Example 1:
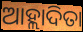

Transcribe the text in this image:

ଆହ୍ଲାଦିତା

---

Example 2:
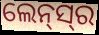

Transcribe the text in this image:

ଲେନ୍‌ସ୍‍ର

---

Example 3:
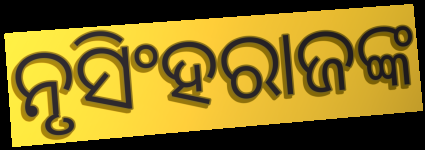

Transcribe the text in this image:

ନୃସିଂହରାଜଙ୍କ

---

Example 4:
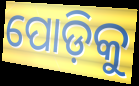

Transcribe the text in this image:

ପୋଡ଼ିକୁ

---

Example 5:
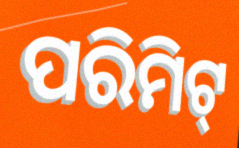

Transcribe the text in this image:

ପରିମିଟ୍